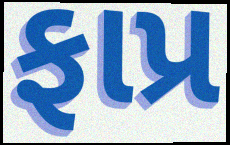
ફાપ્ર